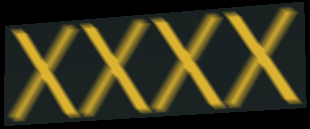
XXXX